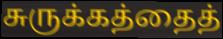
சுருக்கத்தைத்